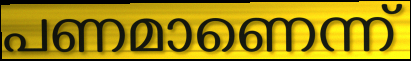
പണമാണെന്ന്